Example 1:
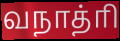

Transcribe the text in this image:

வநாத்ரி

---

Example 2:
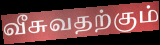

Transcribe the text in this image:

வீசுவதற்கும்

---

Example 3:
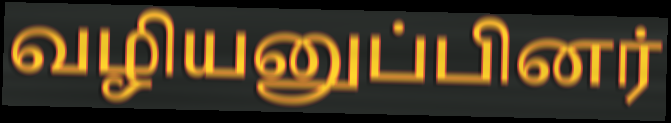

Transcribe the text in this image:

வழியனுப்பினர்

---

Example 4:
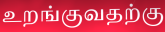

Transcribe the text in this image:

உறங்குவதற்கு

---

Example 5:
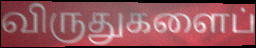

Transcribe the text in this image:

விருதுகளைப்